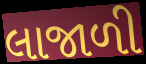
લાજાળી